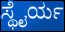
ಸ್ಥೈರ್ಯ